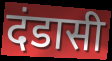
दंडासी